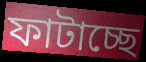
ফাটাচ্ছে